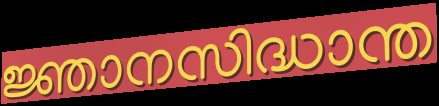
ജ്ഞാനസിദ്ധാന്ത